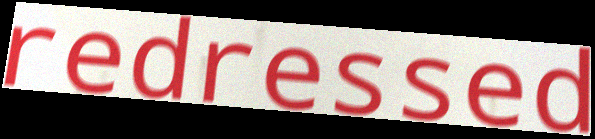
redressed